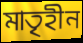
মাতৃহীন